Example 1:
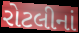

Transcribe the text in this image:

રોટલીનાં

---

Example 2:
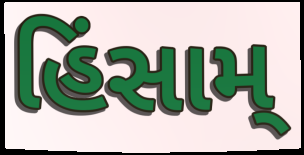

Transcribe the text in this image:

હિંસામ્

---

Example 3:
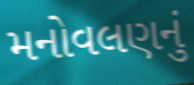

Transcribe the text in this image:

મનોવલણનું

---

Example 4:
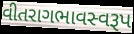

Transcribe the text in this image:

વીતરાગભાવસ્વરૂપ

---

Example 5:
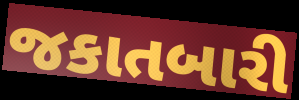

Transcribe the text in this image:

જકાતબારી